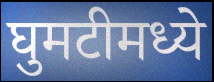
घुमटीमध्ये